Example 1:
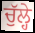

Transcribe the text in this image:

ਚੁੱਲ੍ਹੇ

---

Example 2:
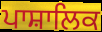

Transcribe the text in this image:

ਪਾਸ਼ਾਲਿਕ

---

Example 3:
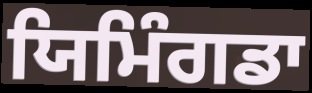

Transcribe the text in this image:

ਯਿਮਿੰਗਡਾ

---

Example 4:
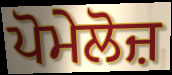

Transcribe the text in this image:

ਪੋਮੇਲੋਜ਼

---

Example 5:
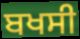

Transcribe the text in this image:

ਬਖਸੀ